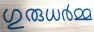
ഗുരുധർമ്മ